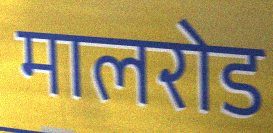
मालरोड